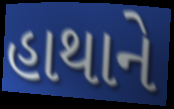
હાથાને